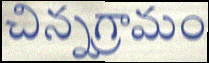
చిన్నగ్రామం